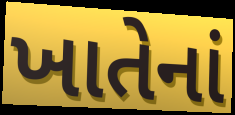
ખાતેનાં